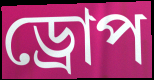
ড্ৰোপ